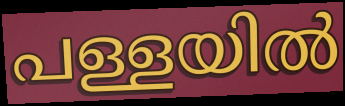
പള്ളയിൽ